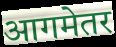
आगमेतर